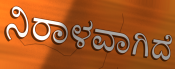
ನಿರಾಳವಾಗಿದೆ